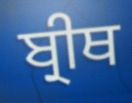
ਬ੍ਰੀਥ